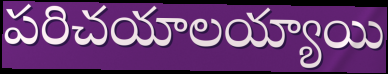
పరిచయాలయ్యాయి